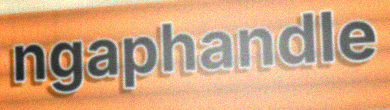
ngaphandle